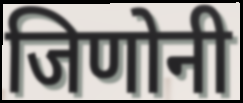
जिणोनी